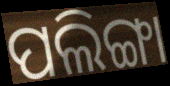
ପଲିଙ୍ଗା